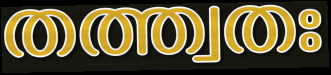
തത്ത്വതഃ